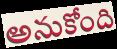
అనుకోంది